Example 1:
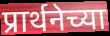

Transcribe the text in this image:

प्रार्थनेच्या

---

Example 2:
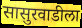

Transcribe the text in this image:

सासुरवाडीला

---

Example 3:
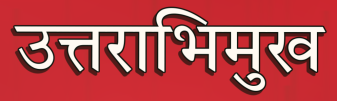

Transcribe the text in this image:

उत्तराभिमुख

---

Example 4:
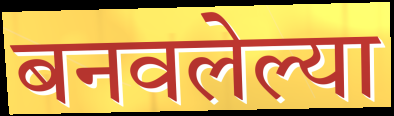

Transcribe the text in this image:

बनवलेल्या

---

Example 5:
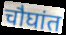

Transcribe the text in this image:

चौघांत